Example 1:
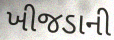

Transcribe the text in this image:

ખીજડાની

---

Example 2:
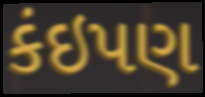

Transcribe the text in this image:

કંઇપણ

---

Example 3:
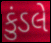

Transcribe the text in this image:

કુંડલે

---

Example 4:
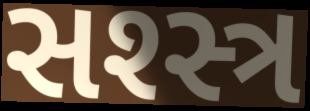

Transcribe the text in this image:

સશ્સ્ત્ર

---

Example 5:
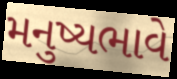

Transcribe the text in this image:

મનુષ્યભાવે